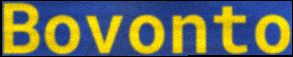
Bovonto